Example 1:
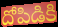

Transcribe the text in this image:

దోపిడికి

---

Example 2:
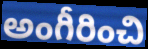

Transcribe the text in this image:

అంగీరించి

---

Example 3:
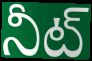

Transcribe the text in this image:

నీట్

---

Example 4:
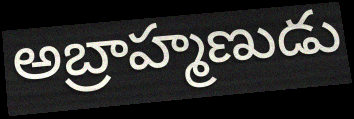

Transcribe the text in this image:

అబ్రాహ్మణుడు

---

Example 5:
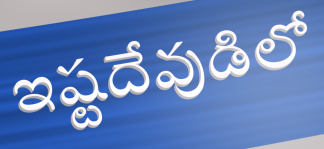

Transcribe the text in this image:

ఇష్టదేవుడిలో